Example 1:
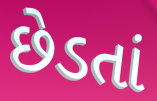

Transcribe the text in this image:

છેડતાં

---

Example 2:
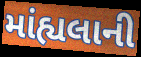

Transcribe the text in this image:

માંહ્યલાની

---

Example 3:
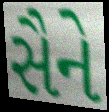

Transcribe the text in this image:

સૈને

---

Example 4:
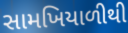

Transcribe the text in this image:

સામખિયાળીથી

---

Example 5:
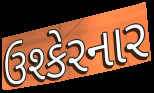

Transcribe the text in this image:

ઉશ્કેરનાર